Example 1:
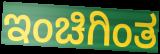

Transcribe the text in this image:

ಇಂಚಿಗಿಂತ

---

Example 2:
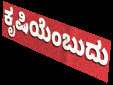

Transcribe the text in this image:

ಕೃಷಿಯೆಂಬುದು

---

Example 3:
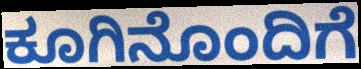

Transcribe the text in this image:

ಕೂಗಿನೊಂದಿಗೆ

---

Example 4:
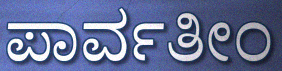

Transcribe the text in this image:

ಪಾರ್ವತೀಂ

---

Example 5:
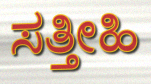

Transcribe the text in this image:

ಸತ್ತೀಹಿ